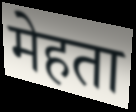
मेहता